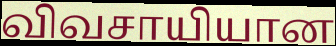
விவசாயியான